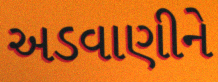
અડવાણીને